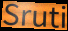
Sruti